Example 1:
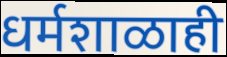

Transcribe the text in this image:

धर्मशाळाही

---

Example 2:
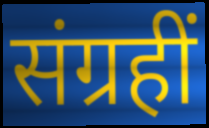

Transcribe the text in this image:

संग्रहीं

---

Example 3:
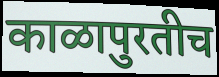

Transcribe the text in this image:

काळापुरतीच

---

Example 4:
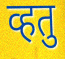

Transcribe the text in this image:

व्हतु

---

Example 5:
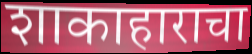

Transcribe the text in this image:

शाकाहाराचा